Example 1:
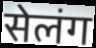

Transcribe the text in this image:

सेलंग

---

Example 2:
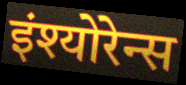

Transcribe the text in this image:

इंश्योरेन्स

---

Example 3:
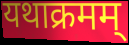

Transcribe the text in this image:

यथाक्रमम्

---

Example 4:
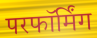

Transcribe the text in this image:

परफॉर्मिंग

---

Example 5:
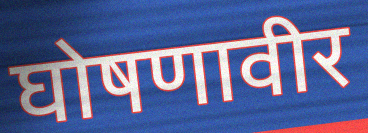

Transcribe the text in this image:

घोषणावीर